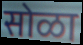
सोळा